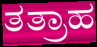
ತತ್ರಾಹ